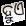
ହୁଏ